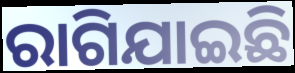
ରାଗିଯାଇଛି